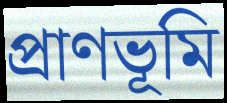
প্রাণভূমি